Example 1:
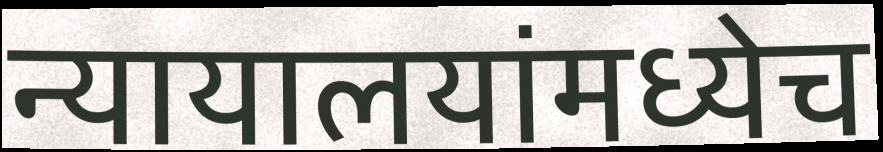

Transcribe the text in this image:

न्यायालयांमध्येच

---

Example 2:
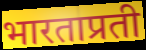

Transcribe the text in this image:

भारताप्रती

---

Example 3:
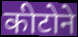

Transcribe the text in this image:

कीटोने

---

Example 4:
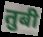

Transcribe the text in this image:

तुबी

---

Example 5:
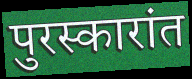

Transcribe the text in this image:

पुरस्कारांत